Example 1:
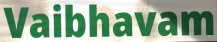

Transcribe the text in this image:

Vaibhavam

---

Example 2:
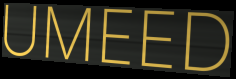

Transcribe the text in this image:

UMEED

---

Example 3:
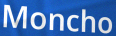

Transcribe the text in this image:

Moncho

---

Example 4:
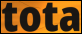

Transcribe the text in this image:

tota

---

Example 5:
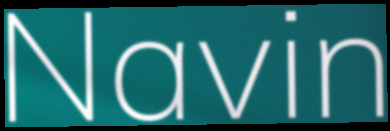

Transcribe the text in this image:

Navin